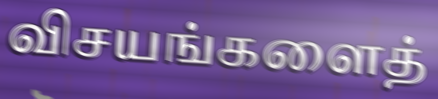
விசயங்களைத்